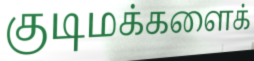
குடிமக்களைக்